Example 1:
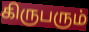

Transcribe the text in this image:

கிருபரும்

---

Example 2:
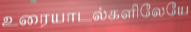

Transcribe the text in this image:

உரையாடல்களிலேயே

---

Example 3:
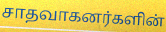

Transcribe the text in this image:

சாதவாகனர்களின்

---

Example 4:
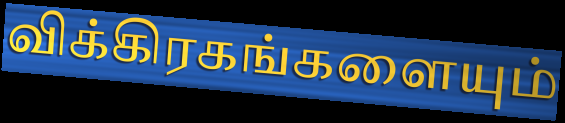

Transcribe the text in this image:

விக்கிரகங்களையும்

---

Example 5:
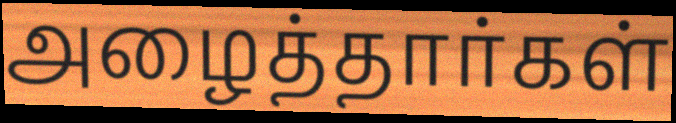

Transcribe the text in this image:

அழைத்தார்கள்